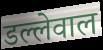
डल्लेवाल